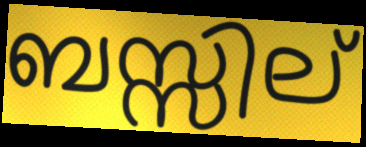
ബസ്സില്